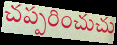
చప్పరించుచు